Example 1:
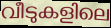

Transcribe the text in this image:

വീടുകളിലെ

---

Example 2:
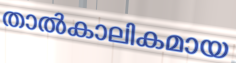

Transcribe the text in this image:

താൽകാലികമായ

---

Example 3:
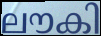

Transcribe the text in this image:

ലൗകി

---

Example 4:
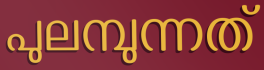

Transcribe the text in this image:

പുലമ്പുന്നത്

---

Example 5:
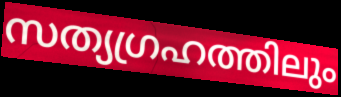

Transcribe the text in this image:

സത്യഗ്രഹത്തിലും